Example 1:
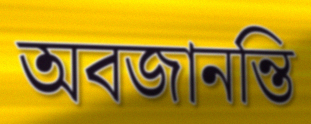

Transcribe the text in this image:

অবজানন্তি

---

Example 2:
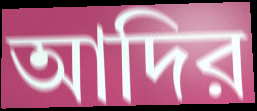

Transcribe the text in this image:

আদির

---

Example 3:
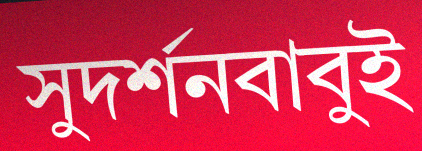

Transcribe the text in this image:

সুদর্শনবাবুই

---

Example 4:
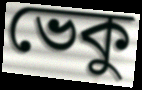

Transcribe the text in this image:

ভেকু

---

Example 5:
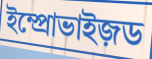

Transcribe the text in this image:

ইম্প্রোভাইজ়ড